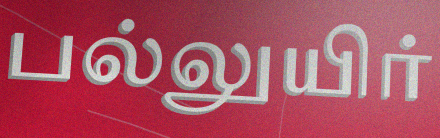
பல்லுயிர்